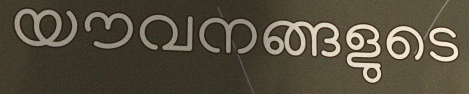
യൗവനങ്ങളുടെ